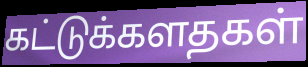
கட்டுக்களதகள்